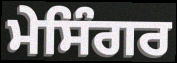
ਮੇਸਿੰਗਰ